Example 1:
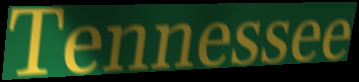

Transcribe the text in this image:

Tennessee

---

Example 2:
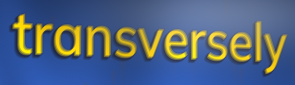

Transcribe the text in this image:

transversely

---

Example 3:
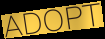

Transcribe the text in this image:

ADOPT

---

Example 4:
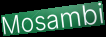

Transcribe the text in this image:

Mosambi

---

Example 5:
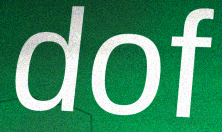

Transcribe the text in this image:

dof